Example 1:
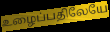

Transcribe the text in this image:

உழைப்பதிலேயே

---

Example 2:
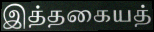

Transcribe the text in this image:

இத்தகையத்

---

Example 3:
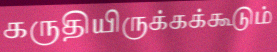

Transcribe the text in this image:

கருதியிருக்கக்கூடும்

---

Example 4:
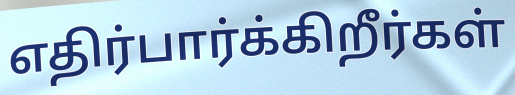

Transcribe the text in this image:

எதிர்பார்க்கிறீர்கள்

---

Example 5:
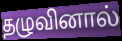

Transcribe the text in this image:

தழுவினால்